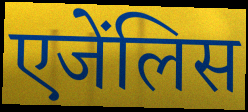
एजेंलिस